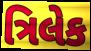
ત્રિલેક